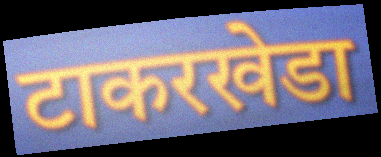
टाकरखेडा